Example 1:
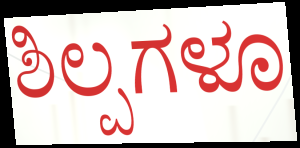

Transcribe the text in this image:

ಶಿಲ್ಪಗಳೂ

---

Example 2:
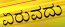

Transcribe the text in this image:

ಏರುವದು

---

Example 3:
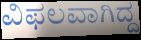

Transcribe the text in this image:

ವಿಫಲವಾಗಿದ್ದ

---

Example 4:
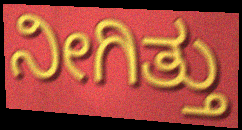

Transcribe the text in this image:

ನೀಗಿತ್ತು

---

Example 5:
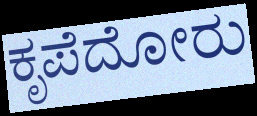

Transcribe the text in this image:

ಕೃಪೆದೋರು